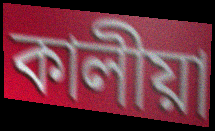
কালীয়া